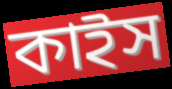
কাইস